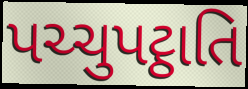
પચ્ચુપટ્ઠાતિ